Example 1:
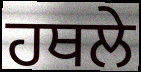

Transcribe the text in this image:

ਹਥਲੇ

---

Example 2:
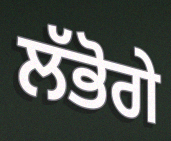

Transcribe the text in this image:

ਲੱਭੋਗੇ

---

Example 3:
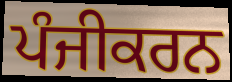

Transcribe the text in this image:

ਪੰਜੀਕਰਨ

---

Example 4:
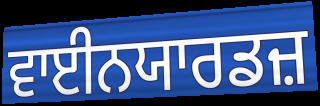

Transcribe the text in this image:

ਵਾਈਨਯਾਰਡਜ਼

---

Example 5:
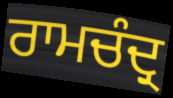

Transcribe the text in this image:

ਰਾਮਚੰਦ੍ਰ